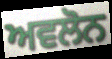
ਅਵਲੋਨ